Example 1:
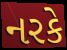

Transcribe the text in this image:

નરકે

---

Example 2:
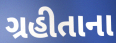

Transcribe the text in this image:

ગ્રહીતાના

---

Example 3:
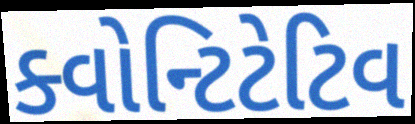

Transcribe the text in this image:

ક્વોન્ટિટેટિવ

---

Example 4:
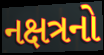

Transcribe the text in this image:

નક્ષત્રનો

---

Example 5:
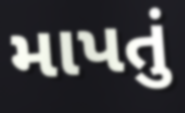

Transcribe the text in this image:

માપતું